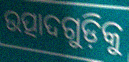
ଉତ୍ପାଦଗୁଡ଼ିକୁ